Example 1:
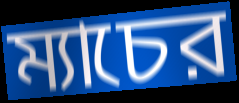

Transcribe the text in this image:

ম্যাচের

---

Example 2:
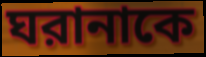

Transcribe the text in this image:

ঘরানাকে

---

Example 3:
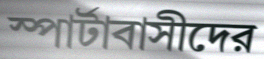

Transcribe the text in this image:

স্পার্টাবাসীদের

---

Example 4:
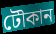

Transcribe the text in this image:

টৌকান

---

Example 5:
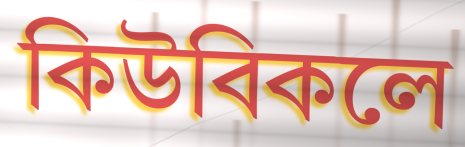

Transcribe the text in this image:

কিউবিকলে